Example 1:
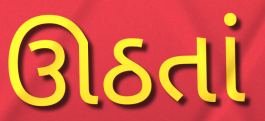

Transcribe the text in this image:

ઊઠતાં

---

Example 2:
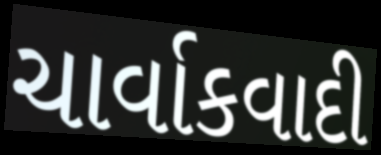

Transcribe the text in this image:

ચાર્વાકવાદી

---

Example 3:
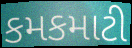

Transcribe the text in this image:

કમકમાટી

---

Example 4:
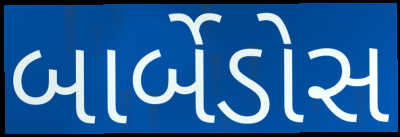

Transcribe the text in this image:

બાર્બેડોસ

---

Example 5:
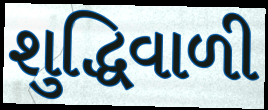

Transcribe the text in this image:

શુદ્ધિવાળી